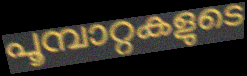
പൂമ്പാറ്റകളുടെ